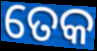
ତେକ